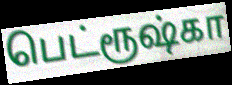
பெட்ரூஷ்கா